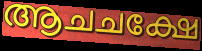
ആചചക്ഷേ